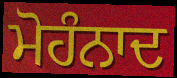
ਮੋਹੰਨਾਦ